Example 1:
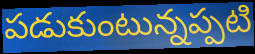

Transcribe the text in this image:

పడుకుంటున్నప్పటి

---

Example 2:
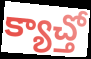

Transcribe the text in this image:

క్యాచ్తో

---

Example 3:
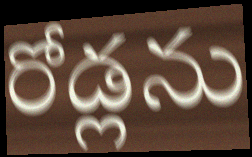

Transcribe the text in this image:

రోడ్లను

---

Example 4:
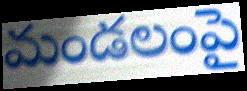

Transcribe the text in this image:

మండలంపై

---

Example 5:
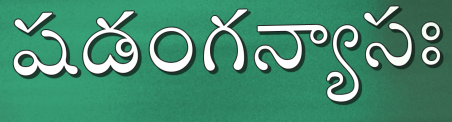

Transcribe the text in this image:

షడంగన్యాసః